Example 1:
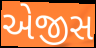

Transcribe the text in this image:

એજીસ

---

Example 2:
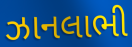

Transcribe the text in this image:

ઝાનલાભી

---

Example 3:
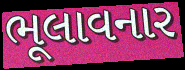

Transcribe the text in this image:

ભૂલાવનાર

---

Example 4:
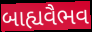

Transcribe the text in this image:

બાહ્યવૈભવ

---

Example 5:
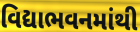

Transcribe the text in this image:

વિદ્યાભવનમાંથી